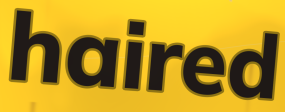
haired